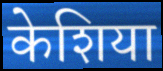
केशिया